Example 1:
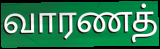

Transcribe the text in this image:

வாரணத்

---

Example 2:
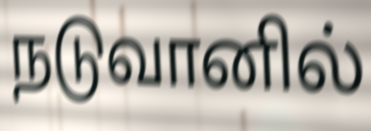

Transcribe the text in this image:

நடுவானில்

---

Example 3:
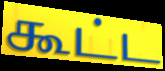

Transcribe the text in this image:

கூட்ட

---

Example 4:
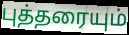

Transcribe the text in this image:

புத்தரையும்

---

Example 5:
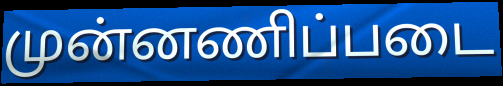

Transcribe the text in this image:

முன்னணிப்படை